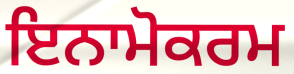
ਇਨਾਮੋਕਰਮ